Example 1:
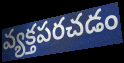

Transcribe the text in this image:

వ్యక్తపరచడం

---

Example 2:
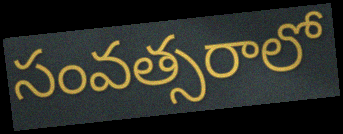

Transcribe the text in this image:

సంవత్సరాలో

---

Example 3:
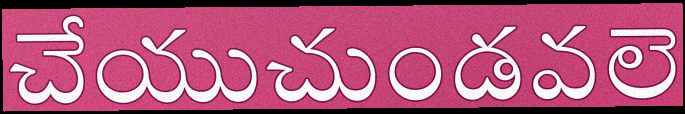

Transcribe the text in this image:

చేయుచుండవలె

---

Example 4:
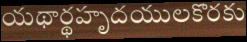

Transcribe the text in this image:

యథార్థహృదయులకొరకు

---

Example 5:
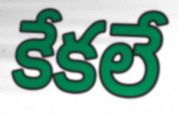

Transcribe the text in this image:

కేకలే